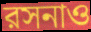
রসনাও